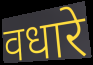
वधारे